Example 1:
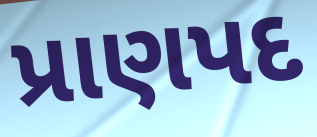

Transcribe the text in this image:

પ્રાણપદ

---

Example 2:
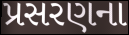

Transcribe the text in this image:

પ્રસરણના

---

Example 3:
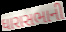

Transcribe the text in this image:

ધારાસભાની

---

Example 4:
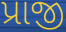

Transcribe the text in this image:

પ્રાજી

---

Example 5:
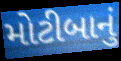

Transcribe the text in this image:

મોટીબાનું